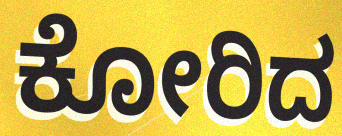
ಕೋರಿದ